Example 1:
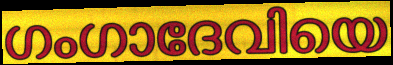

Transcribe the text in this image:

ഗംഗാദേവിയെ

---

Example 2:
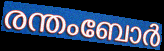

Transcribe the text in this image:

രന്തംബോർ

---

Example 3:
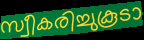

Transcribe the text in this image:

സ്വീകരിച്ചുകൂടാ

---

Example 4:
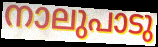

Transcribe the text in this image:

നാലുപാടു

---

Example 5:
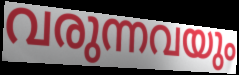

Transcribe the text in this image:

വരുന്നവയും